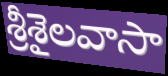
శ్రీశైలవాసా